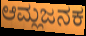
ಆಮ್ಲಜನಕ